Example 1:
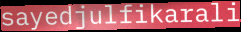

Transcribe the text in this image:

sayedjulfikarali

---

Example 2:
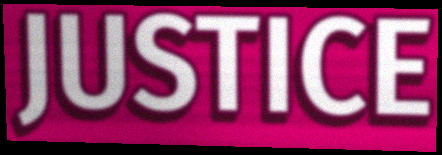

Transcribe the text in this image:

JUSTICE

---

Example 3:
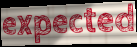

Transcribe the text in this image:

expected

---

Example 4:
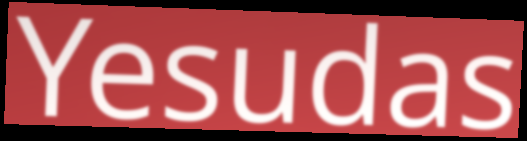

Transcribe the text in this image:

Yesudas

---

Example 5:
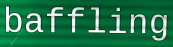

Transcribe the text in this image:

baffling